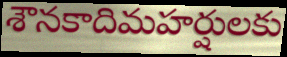
శౌనకాదిమహర్షులకు